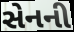
સેનની